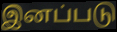
இனப்படு